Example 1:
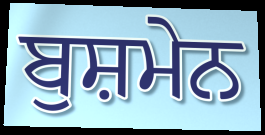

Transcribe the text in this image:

ਬੁਸ਼ਮੇਨ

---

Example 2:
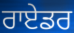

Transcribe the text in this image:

ਰਾਏਡਰ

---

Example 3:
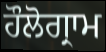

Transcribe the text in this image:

ਹੌਲੋਗ੍ਰਾਮ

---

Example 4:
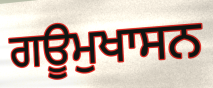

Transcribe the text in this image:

ਗਊਮੁਖਾਸਨ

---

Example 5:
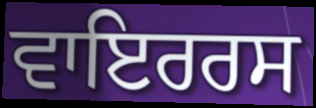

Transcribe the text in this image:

ਵਾਇਰਰਸ